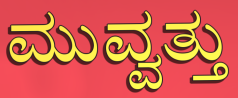
ಮುವ್ವತ್ತು